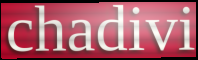
chadivi